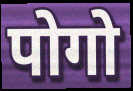
पोगो